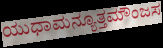
ಯುಧಾಮನ್ಯೂತ್ತಮೌಂಜಸ